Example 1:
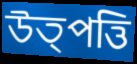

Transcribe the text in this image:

উত্পত্তি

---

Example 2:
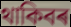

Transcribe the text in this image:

থাকিবৰ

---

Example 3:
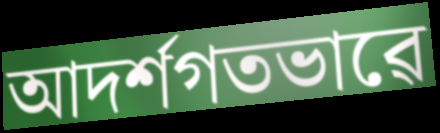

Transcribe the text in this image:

আদৰ্শগতভাৱে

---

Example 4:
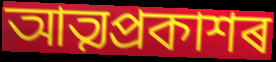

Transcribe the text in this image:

আত্মপ্ৰকাশৰ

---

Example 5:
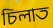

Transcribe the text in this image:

চিলাত